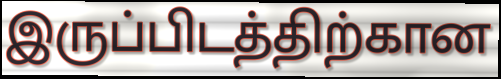
இருப்பிடத்திற்கான